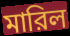
মারিল